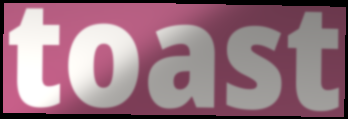
toast